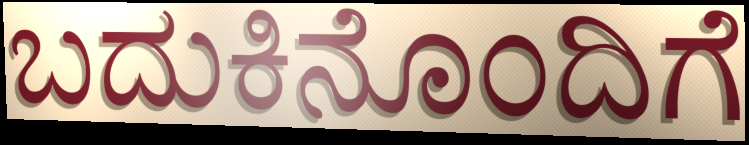
ಬದುಕಿನೊಂದಿಗೆ